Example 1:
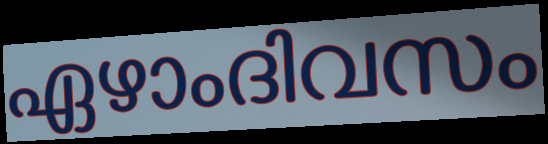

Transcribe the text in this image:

ഏഴാംദിവസം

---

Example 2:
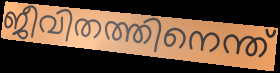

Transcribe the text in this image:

ജീവിതത്തിനെന്ത്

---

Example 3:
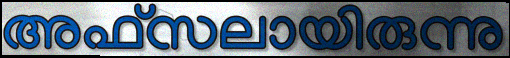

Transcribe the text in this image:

അഫ്സലായിരുന്നു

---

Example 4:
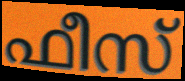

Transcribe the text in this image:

ഫീസ്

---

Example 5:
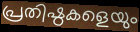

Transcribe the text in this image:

പ്രതിഷ്ഠകളെയും